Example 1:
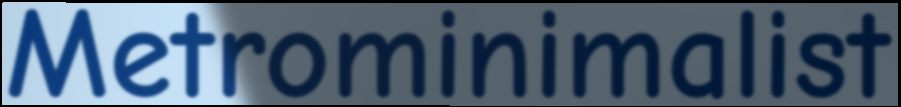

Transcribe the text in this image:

Metrominimalist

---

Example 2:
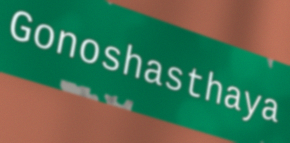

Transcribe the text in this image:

Gonoshasthaya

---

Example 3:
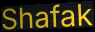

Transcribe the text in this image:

Shafak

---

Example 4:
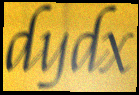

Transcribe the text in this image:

dydx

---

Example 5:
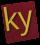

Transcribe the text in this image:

ky